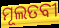
ମୂଲତବୀ